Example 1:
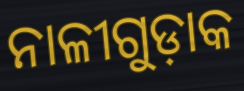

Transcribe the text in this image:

ନାଳୀଗୁଡ଼ାକ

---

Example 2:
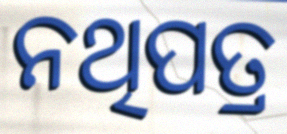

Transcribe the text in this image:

ନଥିପତ୍ର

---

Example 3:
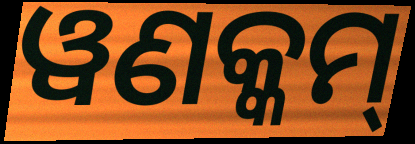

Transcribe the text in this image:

ୱଣକ୍କମ୍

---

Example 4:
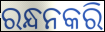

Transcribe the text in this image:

ରନ୍ଧନକରି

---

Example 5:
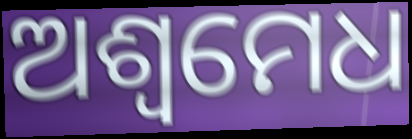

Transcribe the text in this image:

ଅଶ୍ୱମେଧ